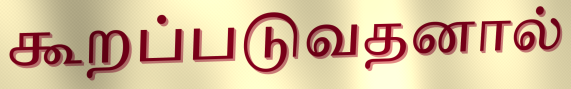
கூறப்படுவதனால்